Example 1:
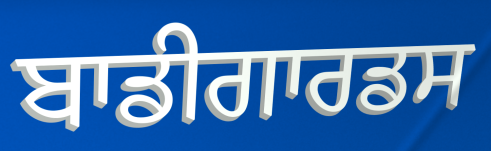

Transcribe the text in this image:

ਬਾਡੀਗਾਰਡਸ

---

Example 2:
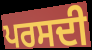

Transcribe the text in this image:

ਪਰਸਦੀ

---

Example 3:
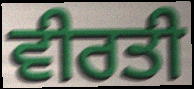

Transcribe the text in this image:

ਵੀਰਤੀ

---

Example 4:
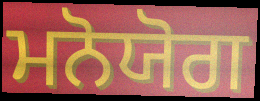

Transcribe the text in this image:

ਮਨੋਯੋਗ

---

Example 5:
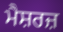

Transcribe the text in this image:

ਮੈਸ਼ਰਜ਼